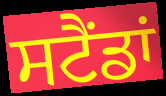
ਸਟੈਂਡਾਂ